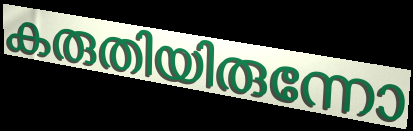
കരുതിയിരുന്നോ